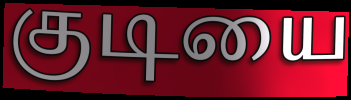
குடியை